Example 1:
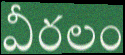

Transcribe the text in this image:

వీరలం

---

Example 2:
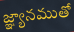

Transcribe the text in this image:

జ్ఞ్యానముతో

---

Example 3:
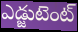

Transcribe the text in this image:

ఎడ్జుటెంట్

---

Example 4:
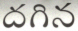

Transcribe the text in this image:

దగిన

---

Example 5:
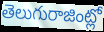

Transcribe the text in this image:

తెలుగురాజింట్లో